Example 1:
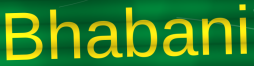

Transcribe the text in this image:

Bhabani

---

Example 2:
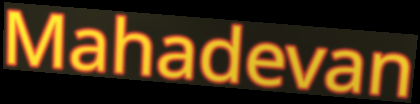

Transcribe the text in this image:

Mahadevan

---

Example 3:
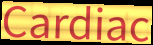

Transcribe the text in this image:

Cardiac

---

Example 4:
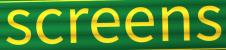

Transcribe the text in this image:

screens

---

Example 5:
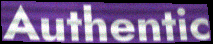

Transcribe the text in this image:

Authentic